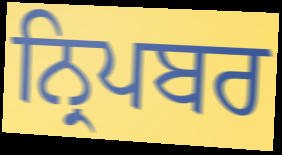
ਨ੍ਰਿਪਬਰ